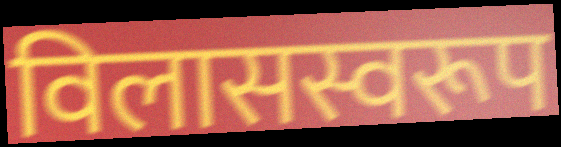
विलासस्वरूप